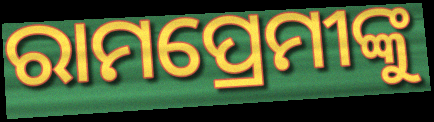
ରାମପ୍ରେମୀଙ୍କୁ